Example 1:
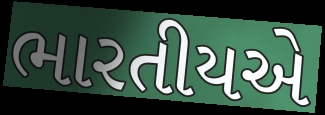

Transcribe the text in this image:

ભારતીયએ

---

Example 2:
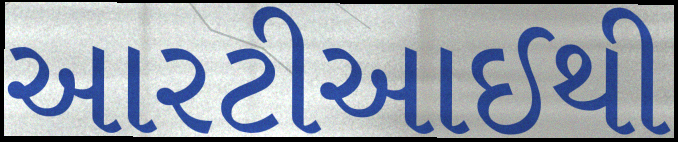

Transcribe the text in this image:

આરટીઆઈથી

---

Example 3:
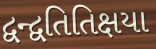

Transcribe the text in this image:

દ્વન્દ્વતિતિક્ષયા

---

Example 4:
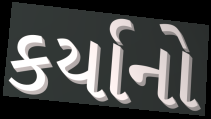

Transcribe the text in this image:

કર્યાનો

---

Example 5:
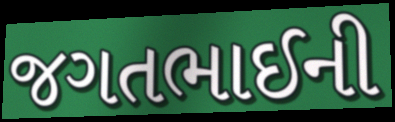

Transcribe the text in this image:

જગતભાઈની